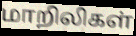
மாறிலிகள்